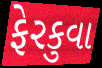
ફેરકુવા